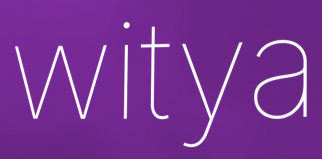
witya